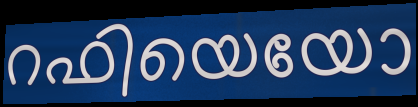
റഫിയെയോ